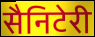
सैनिटेरी